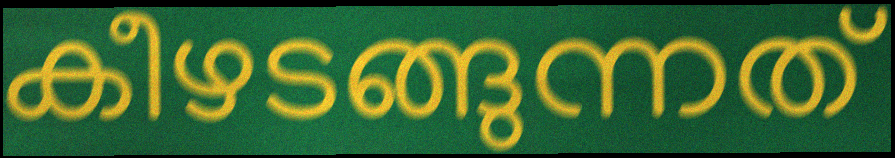
കീഴടങ്ങുന്നത്